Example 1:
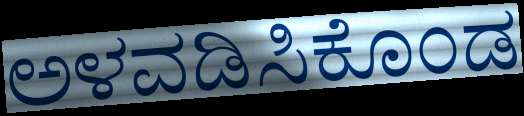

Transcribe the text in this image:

ಅಳವಡಿಸಿಕೊಂಡ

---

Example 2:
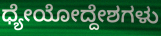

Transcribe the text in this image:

ಧ್ಯೇಯೋದ್ದೇಶಗಳು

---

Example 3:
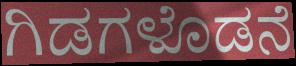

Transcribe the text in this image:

ಗಿಡಗಳೊಡನೆ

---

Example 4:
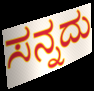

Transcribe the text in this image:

ಸನ್ನದು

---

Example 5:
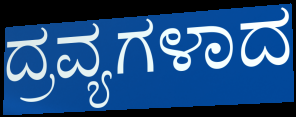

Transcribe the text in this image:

ದ್ರವ್ಯಗಳಾದ